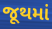
જૂથમાં